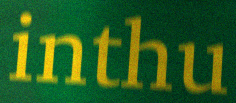
inthu